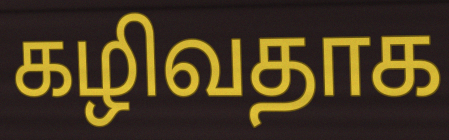
கழிவதாக